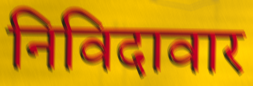
निविदावार